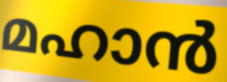
മഹാൻ